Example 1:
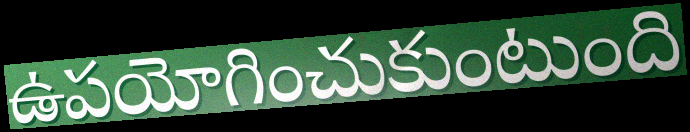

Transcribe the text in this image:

ఉపయోగించుకుంటుంది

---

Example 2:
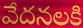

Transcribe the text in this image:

వేదనలకి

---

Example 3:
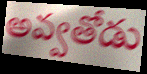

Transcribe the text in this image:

అవ్వతోడు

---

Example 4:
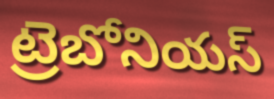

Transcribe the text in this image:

ట్రెబోనియస్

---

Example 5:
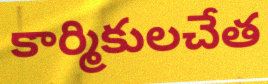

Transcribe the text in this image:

కార్మికులచేత